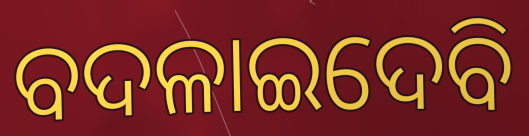
ବଦଳାଇଦେବି